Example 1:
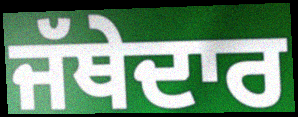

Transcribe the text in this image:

ਜੱਥੇਦਾਰ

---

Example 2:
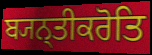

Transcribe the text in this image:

ਬ੍ਯਨ੍ਤੀਕਰੋਤਿ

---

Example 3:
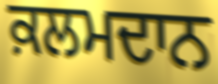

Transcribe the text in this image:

ਕ਼ਲਮਦਾਨ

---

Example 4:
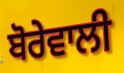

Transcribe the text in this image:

ਬੋਰੇਵਾਲੀ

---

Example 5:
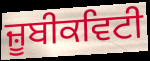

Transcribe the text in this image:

ਜ਼ੂਬੀਕਵਿਟੀ